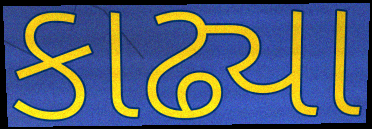
કાઢ્યા